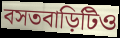
বসতবাড়িটিও